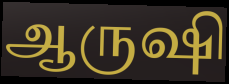
ஆருஷி